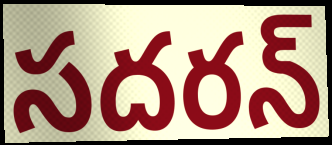
సదరన్